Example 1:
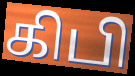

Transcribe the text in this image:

கிபி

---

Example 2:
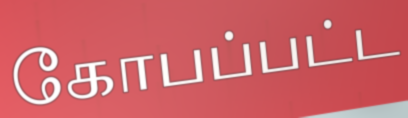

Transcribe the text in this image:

கோபப்பட்ட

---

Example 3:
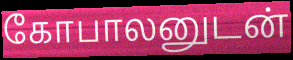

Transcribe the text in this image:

கோபாலனுடன்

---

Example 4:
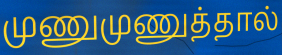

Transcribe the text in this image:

முணுமுணுத்தால்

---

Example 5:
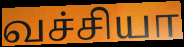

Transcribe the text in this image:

வச்சியா